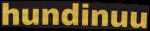
hundinuu